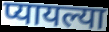
प्यायल्या